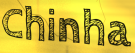
Chinha